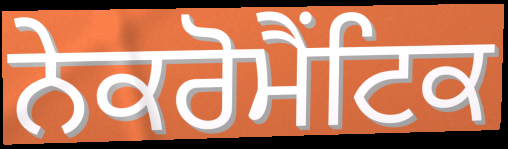
ਨੇਕਰੋਮੈਂਟਿਕ